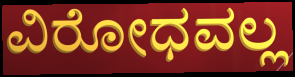
ವಿರೋಧವಲ್ಲ